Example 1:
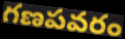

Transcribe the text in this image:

గణపవరం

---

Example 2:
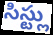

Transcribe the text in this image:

సిస్ట్లు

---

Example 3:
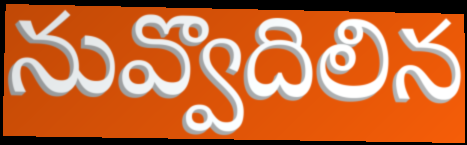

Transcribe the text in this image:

నువ్వొదిలిన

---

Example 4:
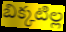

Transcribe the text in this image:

బిక్కటిల్ల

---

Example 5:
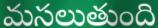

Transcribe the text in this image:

మసలుతుంది